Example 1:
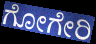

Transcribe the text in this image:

ಗೋಗೇರಿ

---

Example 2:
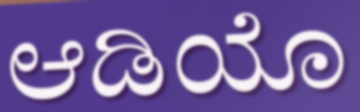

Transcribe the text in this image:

ಆಡಿಯೊ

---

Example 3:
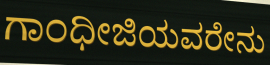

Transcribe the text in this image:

ಗಾಂಧೀಜಿಯವರೇನು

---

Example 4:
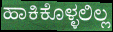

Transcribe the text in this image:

ಹಾಕಿಕೊಳ್ಳಲಿಲ್ಲ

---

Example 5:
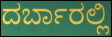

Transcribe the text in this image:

ದರ್ಬಾರಲ್ಲಿ